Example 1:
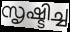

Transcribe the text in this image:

സൃഷ്ടിച്ച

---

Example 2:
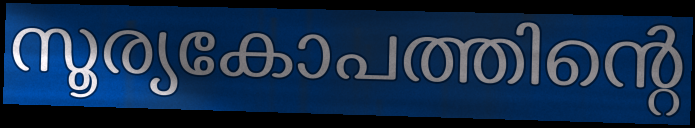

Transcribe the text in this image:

സൂര്യകോപത്തിന്റെ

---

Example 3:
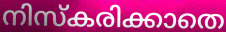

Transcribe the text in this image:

നിസ്കരിക്കാതെ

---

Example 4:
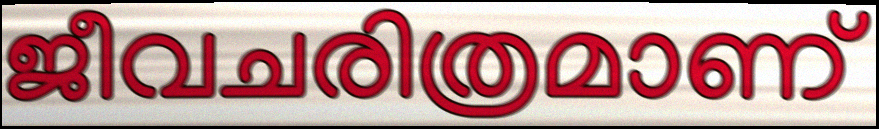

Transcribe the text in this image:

ജീവചരിത്രമാണ്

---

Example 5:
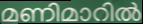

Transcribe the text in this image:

മണിമാറിൽ